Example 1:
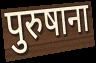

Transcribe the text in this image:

पुरुषाना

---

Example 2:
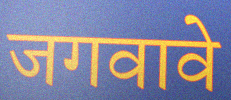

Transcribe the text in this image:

जगवावे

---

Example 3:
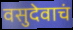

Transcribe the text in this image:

वसुदेवाचं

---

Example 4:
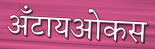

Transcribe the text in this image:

अँटायओकस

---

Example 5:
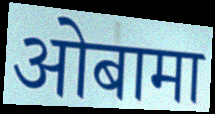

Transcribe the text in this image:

ओबामा